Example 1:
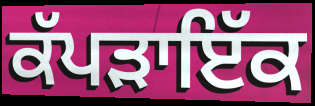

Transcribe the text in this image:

ਕੱਪੜਾਇੱਕ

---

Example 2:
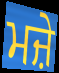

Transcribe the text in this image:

ਮਜ਼ੇ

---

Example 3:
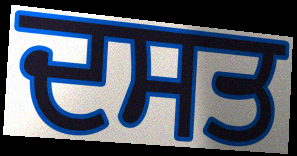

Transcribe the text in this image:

ਦਸਤ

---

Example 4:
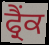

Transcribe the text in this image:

ਫ੍ਰੈਂਕ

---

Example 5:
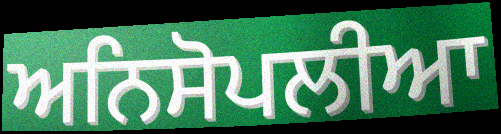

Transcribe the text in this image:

ਅਨਿਸੋਪਲੀਆ